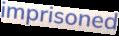
imprisoned